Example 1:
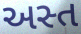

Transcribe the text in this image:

અસ્ત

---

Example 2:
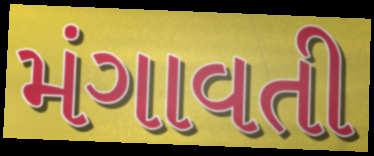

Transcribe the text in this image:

મંગાવતી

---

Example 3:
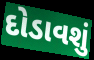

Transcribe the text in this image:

દોડાવશું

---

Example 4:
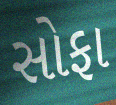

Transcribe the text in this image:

સોફા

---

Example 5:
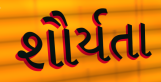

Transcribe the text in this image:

શૌર્યતા